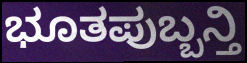
ಭೂತಪುಬ್ಬನ್ತಿ